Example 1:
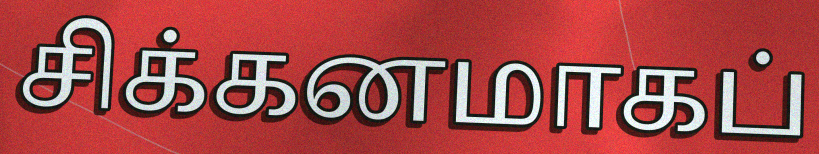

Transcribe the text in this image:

சிக்கனமாகப்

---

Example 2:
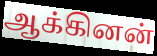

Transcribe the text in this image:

ஆக்கினன்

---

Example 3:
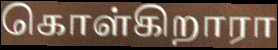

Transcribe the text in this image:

கொள்கிறாரா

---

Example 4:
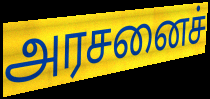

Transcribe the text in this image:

அரசனைச்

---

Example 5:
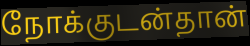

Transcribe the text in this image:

நோக்குடன்தான்